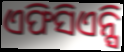
ଏଫିସିଏନ୍ସି